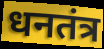
धनतंत्र